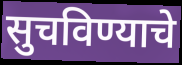
सुचविण्याचे